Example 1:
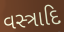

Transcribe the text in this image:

વસ્ત્રાદિ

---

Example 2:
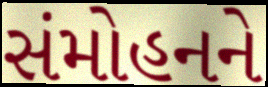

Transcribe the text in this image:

સંમોહનને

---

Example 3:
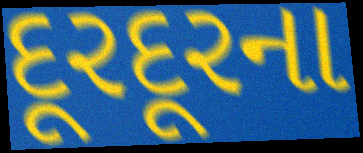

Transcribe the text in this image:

દૂરદૂરના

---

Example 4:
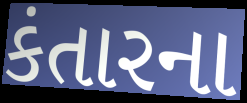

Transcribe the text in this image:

કંતારના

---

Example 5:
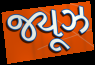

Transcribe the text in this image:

જ્યૂઝ